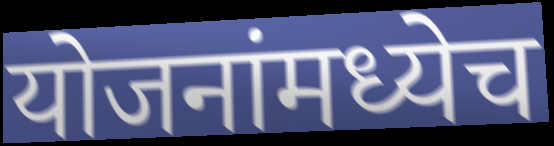
योजनांमध्येच